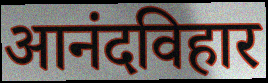
आनंदविहार